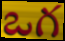
ఒగ